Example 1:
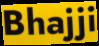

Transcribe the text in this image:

Bhajji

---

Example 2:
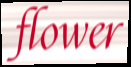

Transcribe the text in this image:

flower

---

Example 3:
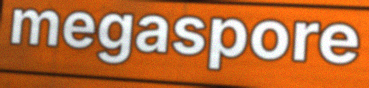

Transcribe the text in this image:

megaspore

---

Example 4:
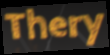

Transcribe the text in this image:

Thery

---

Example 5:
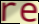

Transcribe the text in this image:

re